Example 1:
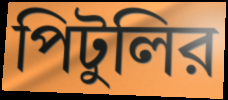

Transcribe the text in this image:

পিটুলির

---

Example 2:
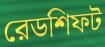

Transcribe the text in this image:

রেডশিফট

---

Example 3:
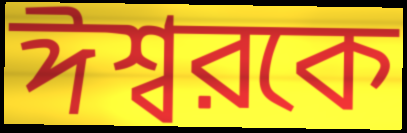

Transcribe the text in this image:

ঈশ্বরকে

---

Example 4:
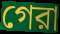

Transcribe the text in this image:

গেরা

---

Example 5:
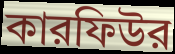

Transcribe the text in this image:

কারফিউর